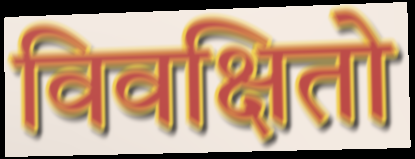
विवक्षितो